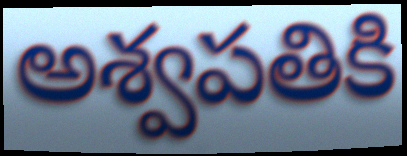
అశ్వపతికి